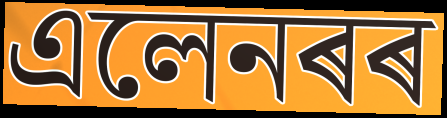
এলেনৰৰ